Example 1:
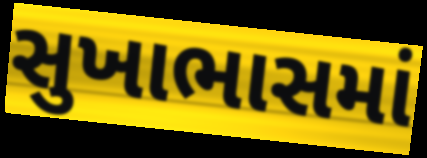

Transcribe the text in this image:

સુખાભાસમાં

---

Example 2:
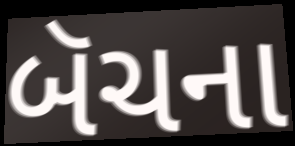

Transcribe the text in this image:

બૅચના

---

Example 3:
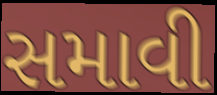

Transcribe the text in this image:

સમાવી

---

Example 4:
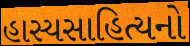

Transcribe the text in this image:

હાસ્યસાહિત્યનો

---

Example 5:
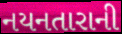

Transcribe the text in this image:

નયનતારાની